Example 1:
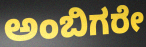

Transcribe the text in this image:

ಅಂಬಿಗರೇ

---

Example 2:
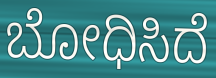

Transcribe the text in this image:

ಬೋಧಿಸಿದೆ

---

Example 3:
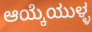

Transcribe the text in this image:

ಆಯ್ಕೆಯುಳ್ಳ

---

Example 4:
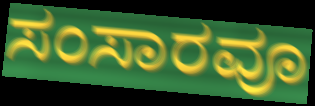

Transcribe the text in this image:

ಸಂಸಾರವೂ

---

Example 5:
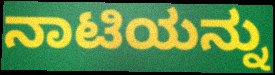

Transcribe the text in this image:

ನಾಟಿಯನ್ನು